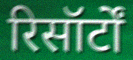
रिसॉर्टों